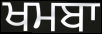
ਖਮਬਾ